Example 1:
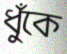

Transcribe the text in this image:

ধুঁকে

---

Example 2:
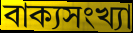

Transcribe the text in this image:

বাক্যসংখ্যা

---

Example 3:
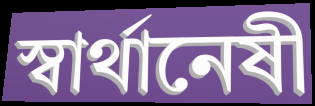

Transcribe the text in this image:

স্বার্থানেষী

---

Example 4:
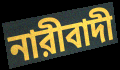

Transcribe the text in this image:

নারীবাদী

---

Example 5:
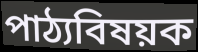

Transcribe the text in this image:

পাঠ্যবিষয়ক